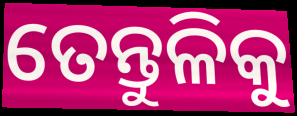
ତେନ୍ତୁଳିକୁ